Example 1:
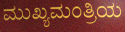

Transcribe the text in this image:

ಮುಖ್ಯಮಂತ್ರಿಯ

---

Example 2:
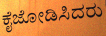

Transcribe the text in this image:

ಕೈಜೋಡಿಸಿದರು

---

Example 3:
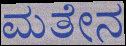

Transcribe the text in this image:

ಮತೇನ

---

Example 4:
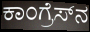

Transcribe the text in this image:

ಕಾಂಗ್ರೆಸ್‍ನ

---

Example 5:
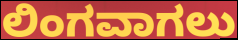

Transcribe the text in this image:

ಲಿಂಗವಾಗಲು